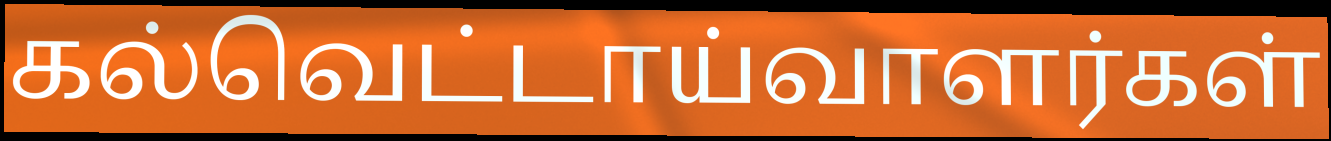
கல்வெட்டாய்வாளர்கள்